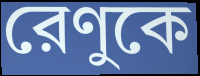
রেণুকে